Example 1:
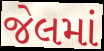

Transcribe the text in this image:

જેલમાં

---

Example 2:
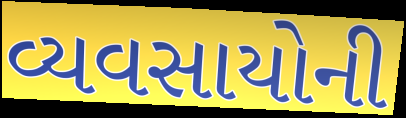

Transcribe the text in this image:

વ્યવસાયોની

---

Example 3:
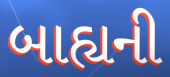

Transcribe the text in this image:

બાહ્યની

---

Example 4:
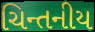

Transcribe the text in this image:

ચિન્તનીય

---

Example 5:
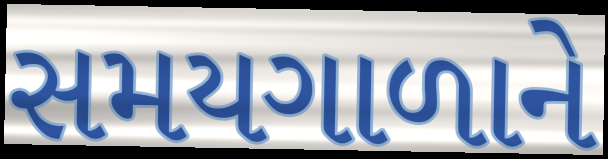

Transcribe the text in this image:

સમયગાળાને